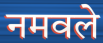
नमवले